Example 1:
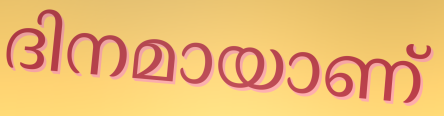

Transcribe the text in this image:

ദിനമായാണ്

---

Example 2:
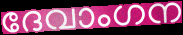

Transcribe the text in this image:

ദേവാംഗന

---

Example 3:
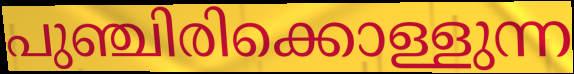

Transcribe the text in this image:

പുഞ്ചിരിക്കൊള്ളുന്ന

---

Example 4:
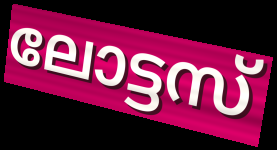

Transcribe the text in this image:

ലോട്ടസ്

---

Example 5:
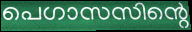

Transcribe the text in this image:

പെഗാസസിന്റെ